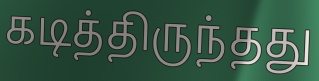
கடித்திருந்தது